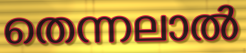
തെന്നലാൽ